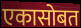
एकासोबत